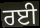
ਰਈ